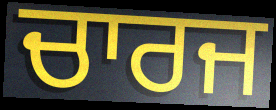
ਚਾਰਜ